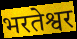
भरतेश्वर